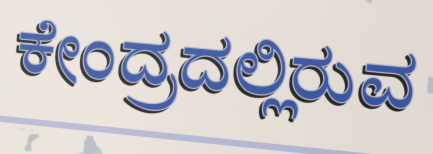
ಕೇಂದ್ರದಲ್ಲಿರುವ